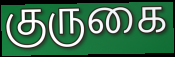
குருகை